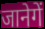
जानेगें